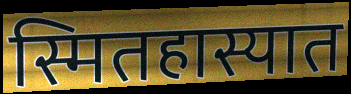
स्मितहास्यात